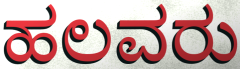
ಹಲವರು